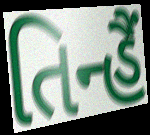
તિન્હૈં